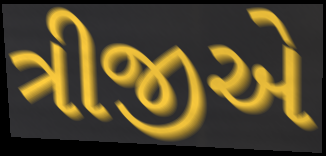
ત્રીજીએ